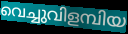
വെച്ചുവിളമ്പിയ